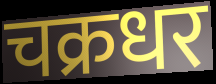
चक्रधर